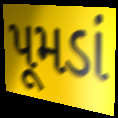
પૂમડાં